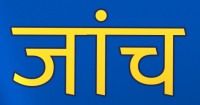
जांच